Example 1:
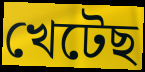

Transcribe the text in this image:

খেটেছ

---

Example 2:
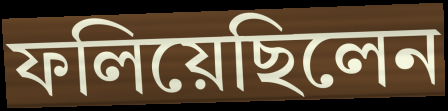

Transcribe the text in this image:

ফলিয়েছিলেন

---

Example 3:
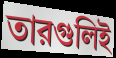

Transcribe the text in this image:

তারগুলিই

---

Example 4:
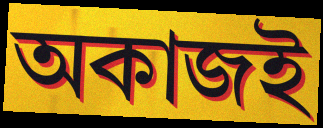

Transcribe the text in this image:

অকাজই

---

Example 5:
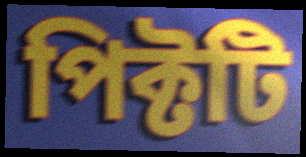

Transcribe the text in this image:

পিক্টটি